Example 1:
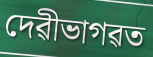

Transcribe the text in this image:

দেৱীভাগৱত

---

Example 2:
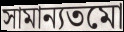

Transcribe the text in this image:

সামান্যতমো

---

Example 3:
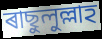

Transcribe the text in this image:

ৰাছুলুল্লাহ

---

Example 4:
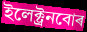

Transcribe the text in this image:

ইলেক্ট্ৰনবোৰ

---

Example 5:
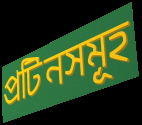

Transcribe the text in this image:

প্ৰটিনসমূহ